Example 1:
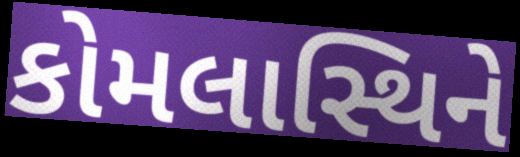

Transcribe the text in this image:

કોમલાસ્થિને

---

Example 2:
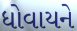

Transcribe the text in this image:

ધોવાયને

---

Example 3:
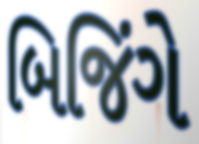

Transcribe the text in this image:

બિજિંગે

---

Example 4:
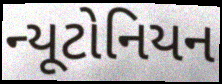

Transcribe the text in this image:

ન્યૂટોનિયન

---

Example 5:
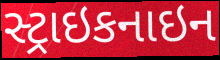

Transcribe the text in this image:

સ્ટ્રાઇકનાઇન